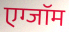
एग्जॉम